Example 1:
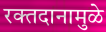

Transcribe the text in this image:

रक्तदानामुळे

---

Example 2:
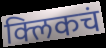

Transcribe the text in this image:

क्लिकचं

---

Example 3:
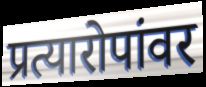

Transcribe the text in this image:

प्रत्यारोपांवर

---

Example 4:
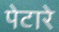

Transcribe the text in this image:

पेटारे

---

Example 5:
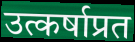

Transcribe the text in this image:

उत्कर्षाप्रत